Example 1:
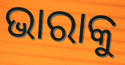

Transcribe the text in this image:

ଭାରାକୁ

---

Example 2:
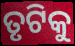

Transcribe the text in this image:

ତୃଟିକୁ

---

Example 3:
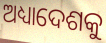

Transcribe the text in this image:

ଅଧ୍ୟାଦେଶକୁ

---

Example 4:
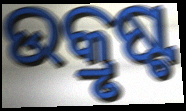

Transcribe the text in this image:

ଉକ୍ରୃଷ୍ଟ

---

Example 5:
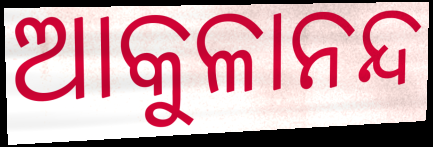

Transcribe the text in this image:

ଆକୁଳାନନ୍ଦ